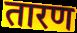
तारण